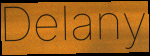
Delany